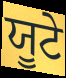
ਯੂਟੇ